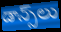
డాన్స్‌లు